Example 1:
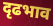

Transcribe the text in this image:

दृढभाव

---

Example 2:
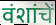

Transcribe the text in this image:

वंशांचें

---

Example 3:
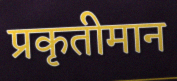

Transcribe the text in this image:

प्रकृतीमान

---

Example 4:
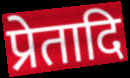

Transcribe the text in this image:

प्रेतादि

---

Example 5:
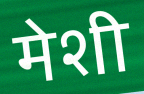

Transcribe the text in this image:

मेशी